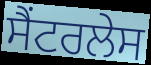
ਸੈਂਟਰਲੇਸ